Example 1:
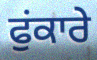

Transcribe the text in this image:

ਫੁਂਕਾਰੇ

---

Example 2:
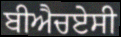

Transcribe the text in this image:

ਬੀਐਚਏਸੀ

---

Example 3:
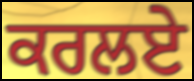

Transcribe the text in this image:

ਕਰਲਏ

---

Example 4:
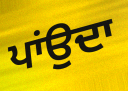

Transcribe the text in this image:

ਪਾਂਉਦਾ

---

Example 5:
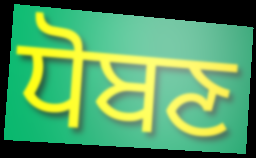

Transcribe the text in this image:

ਧੋਬਣ